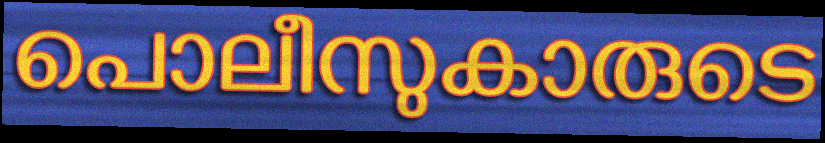
പൊലീസുകാരുടെ